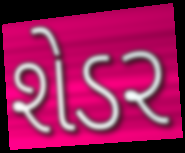
શેડર